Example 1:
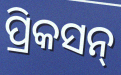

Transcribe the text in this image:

ପ୍ରିକସନ୍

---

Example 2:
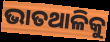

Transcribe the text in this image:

ଭାତଥାଳିକୁ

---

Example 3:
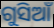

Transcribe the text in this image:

ଗୁସିଆଁ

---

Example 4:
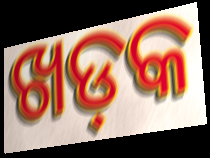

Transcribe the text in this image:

ଖଡ଼କ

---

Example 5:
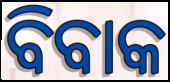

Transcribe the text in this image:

ବିବାକ